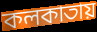
কলকাতায়